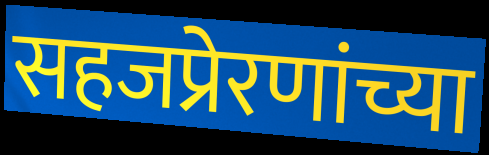
सहजप्रेरणांच्या